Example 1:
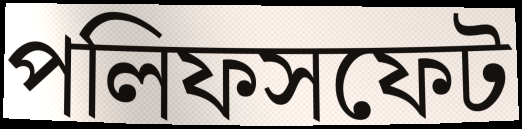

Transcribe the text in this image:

পলিফসফেট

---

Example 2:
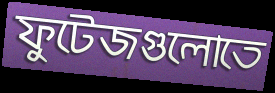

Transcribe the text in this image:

ফুটেজগুলোতে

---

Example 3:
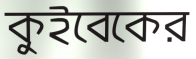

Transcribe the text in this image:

কুইবেকের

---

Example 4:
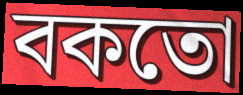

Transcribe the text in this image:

বকতো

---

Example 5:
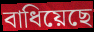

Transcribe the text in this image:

বাধিয়েছে